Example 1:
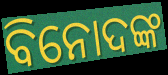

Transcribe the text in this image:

ବିନୋଦଙ୍କ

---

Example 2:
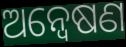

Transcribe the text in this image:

ଅନ୍ବେଷଣ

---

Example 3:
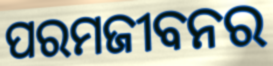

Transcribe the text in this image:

ପରମଜୀବନର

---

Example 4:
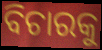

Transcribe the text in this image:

ବିଚାରକୁ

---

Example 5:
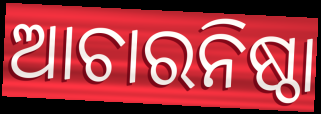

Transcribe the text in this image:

ଆଚାରନିଷ୍ଠା